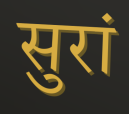
सुरां